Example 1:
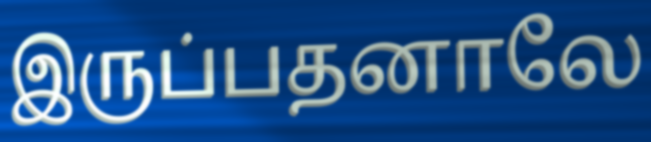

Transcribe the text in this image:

இருப்பதனாலே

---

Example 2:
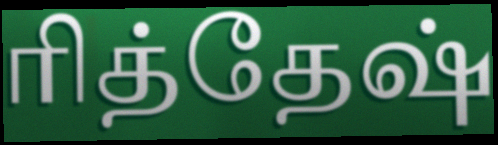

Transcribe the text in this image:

ரித்தேஷ்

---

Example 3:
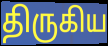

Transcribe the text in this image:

திருகிய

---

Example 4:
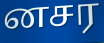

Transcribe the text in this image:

னசர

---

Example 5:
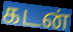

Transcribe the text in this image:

கடன்